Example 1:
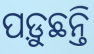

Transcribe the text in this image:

ପଡ଼ୁଛନ୍ତି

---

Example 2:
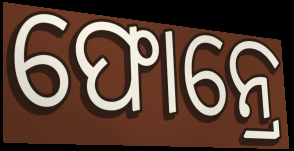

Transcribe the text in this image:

ଫୋନ୍ରେ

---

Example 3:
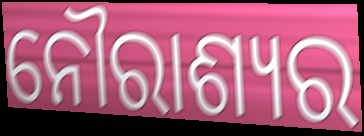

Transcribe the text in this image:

ନୌରାଶ୍ୟର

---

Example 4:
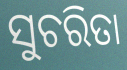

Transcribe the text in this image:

ସୁଚରିତା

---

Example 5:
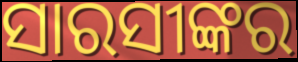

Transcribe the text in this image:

ସାରସୀଙ୍କର